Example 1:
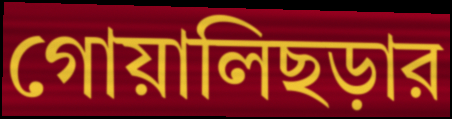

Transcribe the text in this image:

গোয়ালিছড়ার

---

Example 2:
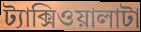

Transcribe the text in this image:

ট্যাক্সিওয়ালাটা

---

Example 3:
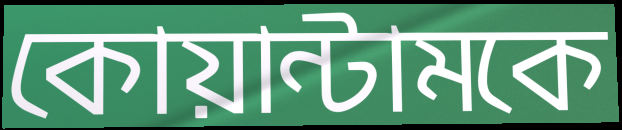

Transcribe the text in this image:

কোয়ান্টামকে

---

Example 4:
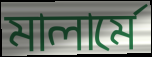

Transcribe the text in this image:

মালার্মে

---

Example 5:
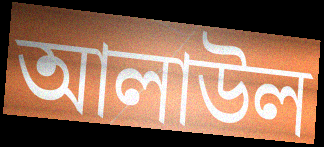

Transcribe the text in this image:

আলাউল